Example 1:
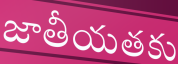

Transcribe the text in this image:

జాతీయతకు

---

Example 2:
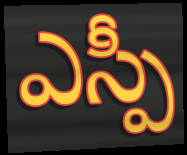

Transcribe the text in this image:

ఎస్పీ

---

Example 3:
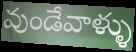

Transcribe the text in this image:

వుండేవాళ్ళు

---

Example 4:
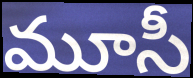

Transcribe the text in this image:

మూసీ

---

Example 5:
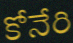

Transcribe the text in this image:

కోనేరి